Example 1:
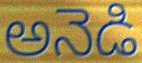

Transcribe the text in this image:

అనెడి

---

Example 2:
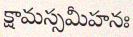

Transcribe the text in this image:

క్షామస్సమీహనః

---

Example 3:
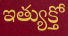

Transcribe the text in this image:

ఇత్యుక్తో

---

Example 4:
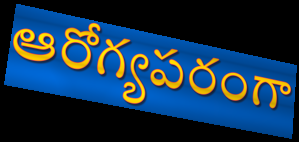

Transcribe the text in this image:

ఆరోగ్యపరంగా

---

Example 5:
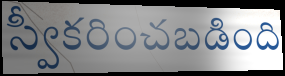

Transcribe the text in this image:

స్వీకరించబడింది